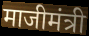
माजीमंत्री